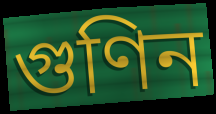
গুণিন